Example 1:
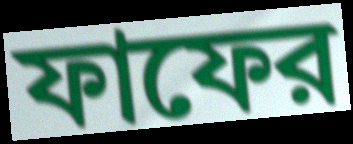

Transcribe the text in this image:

ফাফের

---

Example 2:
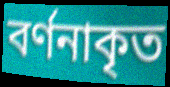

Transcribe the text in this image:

বর্ণনাকৃত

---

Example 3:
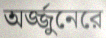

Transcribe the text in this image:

অর্জ্জুনেরে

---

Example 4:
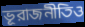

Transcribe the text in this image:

ভূরাজনীতিও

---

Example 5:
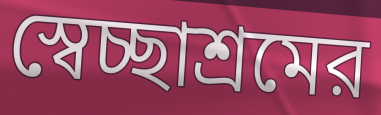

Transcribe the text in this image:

স্বেচ্ছাশ্রমের